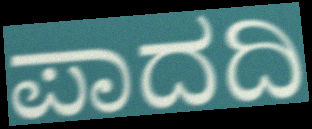
ಪಾದದಿ